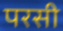
परसी